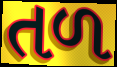
તળ